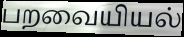
பறவையியல்